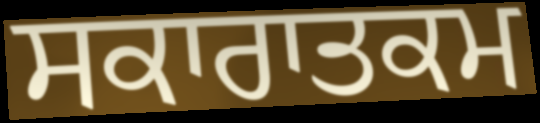
ਸਕਾਰਾਤਕਮ